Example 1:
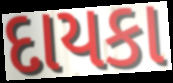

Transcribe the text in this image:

દાયકા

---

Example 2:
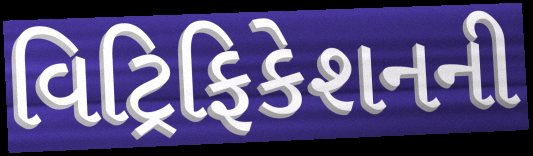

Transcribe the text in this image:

વિટ્રિફિકેશનની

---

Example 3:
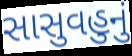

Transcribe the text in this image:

સાસુવહુનું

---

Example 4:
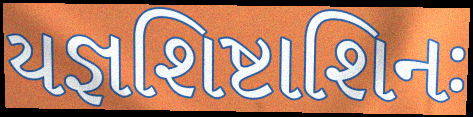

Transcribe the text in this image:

યજ્ઞશિષ્ટાશિનઃ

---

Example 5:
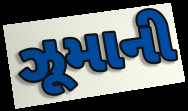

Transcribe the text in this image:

ઝૂમાની